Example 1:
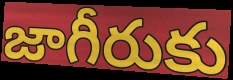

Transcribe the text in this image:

జాగీరుకు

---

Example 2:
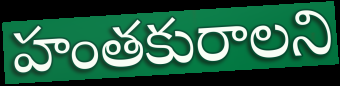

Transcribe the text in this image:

హంతకురాలని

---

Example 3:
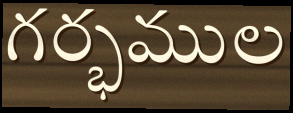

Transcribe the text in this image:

గర్భముల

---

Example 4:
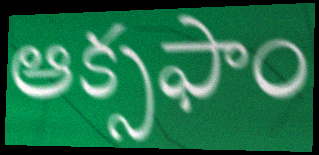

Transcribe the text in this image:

ఆక్సఫాం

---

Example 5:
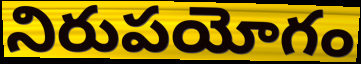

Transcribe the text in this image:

నిరుపయోగం